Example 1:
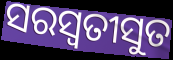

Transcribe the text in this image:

ସରସ୍ୱତୀସୁତ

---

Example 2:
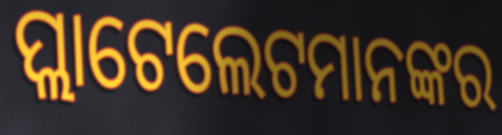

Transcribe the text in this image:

ପ୍ଲାଟେଲେଟମାନଙ୍କର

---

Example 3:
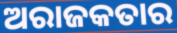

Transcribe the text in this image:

ଅରାଜକତାର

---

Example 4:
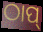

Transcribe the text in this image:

ଠାପ୍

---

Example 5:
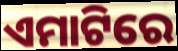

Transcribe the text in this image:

ଏମାଟିରେ